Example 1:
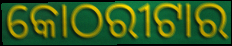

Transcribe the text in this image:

କୋଠରୀଟାର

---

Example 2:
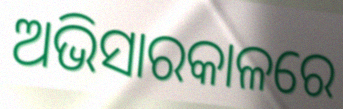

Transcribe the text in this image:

ଅଭିସାରକାଳରେ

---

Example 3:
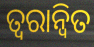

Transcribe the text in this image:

ତ୍ୱରାନ୍ଵିତ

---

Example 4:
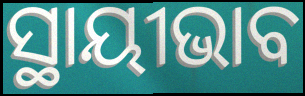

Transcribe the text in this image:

ସ୍ଥାୟୀଭାବ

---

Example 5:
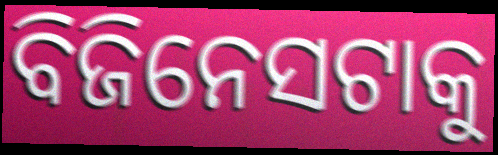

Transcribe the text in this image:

ବିଜିନେସଟାକୁ